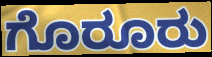
ಗೊರೂರು